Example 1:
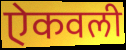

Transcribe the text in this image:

ऐकवली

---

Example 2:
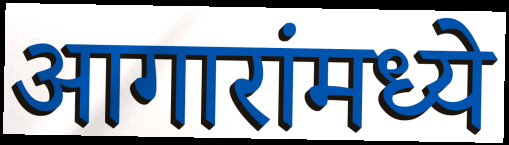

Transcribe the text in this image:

आगारांमध्ये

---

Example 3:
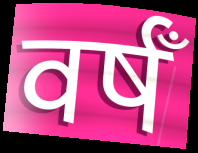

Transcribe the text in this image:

वर्षँ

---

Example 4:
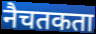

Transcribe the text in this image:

नैचतकता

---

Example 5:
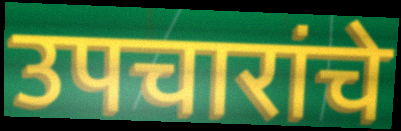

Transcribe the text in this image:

उपचारांचे